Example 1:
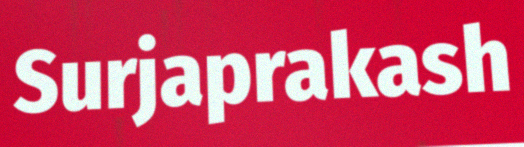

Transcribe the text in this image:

Surjaprakash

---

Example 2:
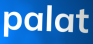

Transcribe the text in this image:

palat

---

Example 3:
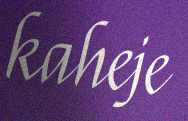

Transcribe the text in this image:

kaheje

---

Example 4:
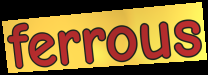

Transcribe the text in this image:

ferrous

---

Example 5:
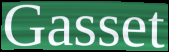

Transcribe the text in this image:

Gasset